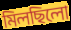
মিলছিলো